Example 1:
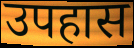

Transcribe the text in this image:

उपहास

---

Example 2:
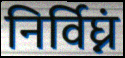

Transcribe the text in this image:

निर्विघ्नं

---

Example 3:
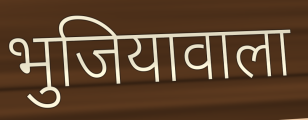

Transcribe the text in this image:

भुजियावाला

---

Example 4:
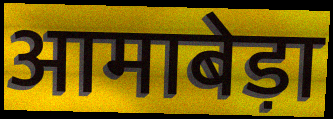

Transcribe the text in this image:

आमाबेड़ा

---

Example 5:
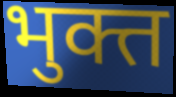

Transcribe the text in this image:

भुक्त